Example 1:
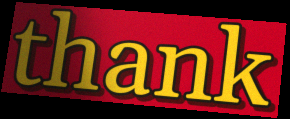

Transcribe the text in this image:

thank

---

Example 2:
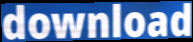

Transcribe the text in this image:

download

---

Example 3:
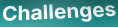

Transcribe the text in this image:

Challenges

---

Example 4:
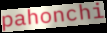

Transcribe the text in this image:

pahonchi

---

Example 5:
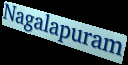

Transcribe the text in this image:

Nagalapuram